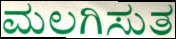
ಮಲಗಿಸುತ